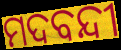
ମଦବନ୍ଦୀ